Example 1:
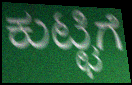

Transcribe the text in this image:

ಕುಟ್ಟಿಗೆ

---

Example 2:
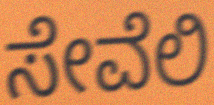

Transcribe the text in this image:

ಸೇವೆಲಿ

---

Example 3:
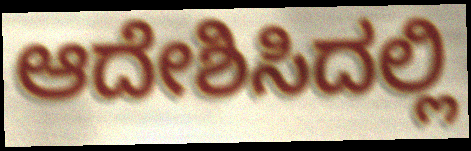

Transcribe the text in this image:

ಆದೇಶಿಸಿದಲ್ಲಿ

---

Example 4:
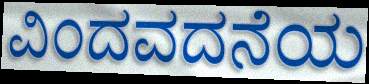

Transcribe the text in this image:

ವಿಂದವದನೆಯ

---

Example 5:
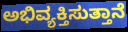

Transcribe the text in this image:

ಅಭಿವ್ಯಕ್ತಿಸುತ್ತಾನೆ